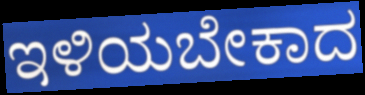
ಇಳಿಯಬೇಕಾದ